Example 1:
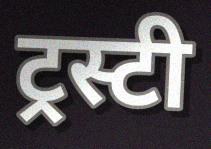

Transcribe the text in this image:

ट्रस्टी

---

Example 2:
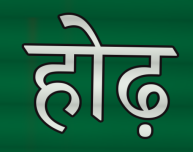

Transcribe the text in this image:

होढ़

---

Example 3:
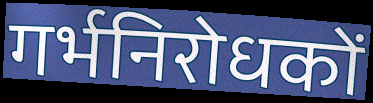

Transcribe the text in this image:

गर्भनिरोधकों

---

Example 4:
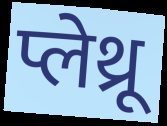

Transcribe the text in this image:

प्लेथ्रू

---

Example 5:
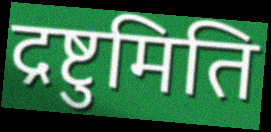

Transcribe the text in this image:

द्रष्टुमिति